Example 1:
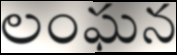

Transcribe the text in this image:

లంఘన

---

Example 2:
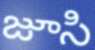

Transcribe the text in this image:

జూసి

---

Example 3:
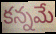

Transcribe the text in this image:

కన్నమే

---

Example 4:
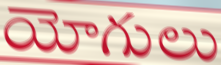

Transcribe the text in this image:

యోగులు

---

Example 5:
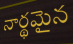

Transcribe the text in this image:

నార్థమైన